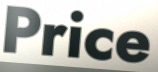
Price